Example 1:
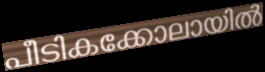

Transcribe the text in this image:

പീടികക്കോലായിൽ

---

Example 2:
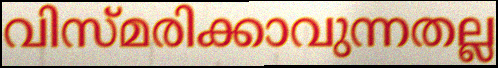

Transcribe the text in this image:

വിസ്മരിക്കാവുന്നതല്ല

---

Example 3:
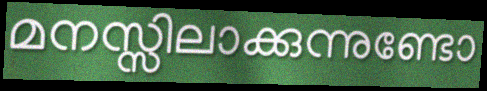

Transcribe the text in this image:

മനസ്സിലാക്കുന്നുണ്ടോ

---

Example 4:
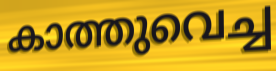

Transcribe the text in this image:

കാത്തുവെച്ച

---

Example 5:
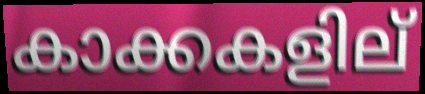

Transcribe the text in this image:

കാക്കകളില്